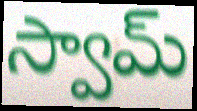
స్వామ్